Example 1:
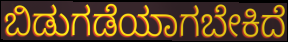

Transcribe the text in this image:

ಬಿಡುಗಡೆಯಾಗಬೇಕಿದೆ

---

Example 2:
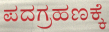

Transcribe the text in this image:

ಪದಗ್ರಹಣಕ್ಕೆ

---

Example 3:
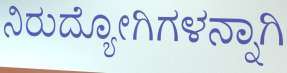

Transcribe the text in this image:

ನಿರುದ್ಯೋಗಿಗಳನ್ನಾಗಿ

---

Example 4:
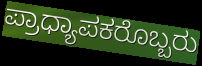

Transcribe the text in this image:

ಪ್ರಾಧ್ಯಾಪಕರೊಬ್ಬರು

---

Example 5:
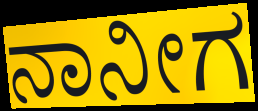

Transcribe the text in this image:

ನಾನೀಗ